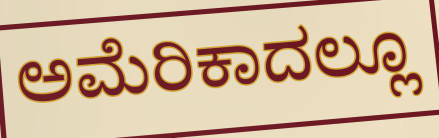
ಅಮೆರಿಕಾದಲ್ಲೂ